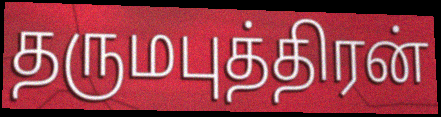
தருமபுத்திரன்